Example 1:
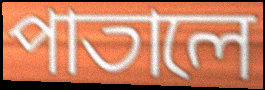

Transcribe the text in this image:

পাতালে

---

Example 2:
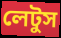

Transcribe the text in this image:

লেটুস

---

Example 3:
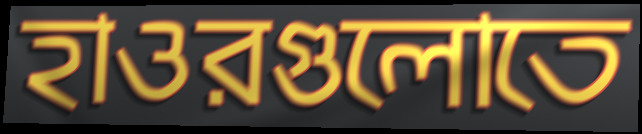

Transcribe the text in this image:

হাওরগুলোতে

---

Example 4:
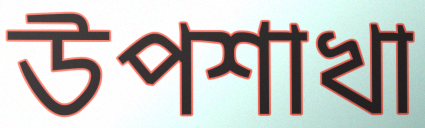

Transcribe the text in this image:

উপশাখা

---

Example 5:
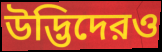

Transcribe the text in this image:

উদ্ভিদেরও